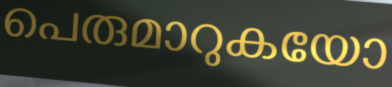
പെരുമാറുകയോ